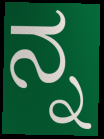
ನ್ನ